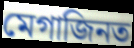
মেগাজিনত